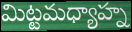
మిట్టమధ్యాహ్న